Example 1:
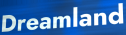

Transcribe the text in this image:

Dreamland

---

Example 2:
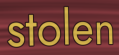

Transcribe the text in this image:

stolen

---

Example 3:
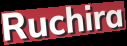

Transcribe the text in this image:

Ruchira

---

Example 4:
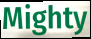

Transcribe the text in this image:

Mighty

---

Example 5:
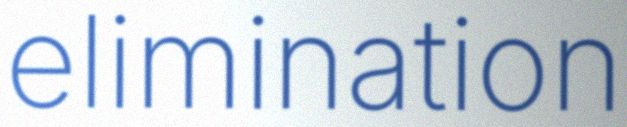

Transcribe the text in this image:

elimination